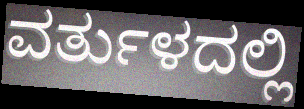
ವರ್ತುಳದಲ್ಲಿ